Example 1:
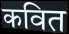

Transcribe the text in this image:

कवित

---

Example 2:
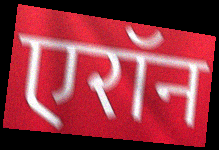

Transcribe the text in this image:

एरॉन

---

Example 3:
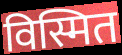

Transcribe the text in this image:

विस्मित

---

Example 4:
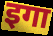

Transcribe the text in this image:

इगा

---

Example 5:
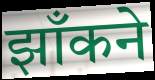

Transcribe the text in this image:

झाँकने